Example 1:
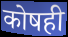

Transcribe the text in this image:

कोषही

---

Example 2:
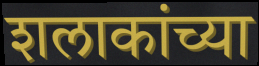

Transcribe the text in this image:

शलाकांच्या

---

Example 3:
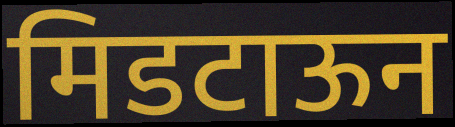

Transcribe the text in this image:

मिडटाऊन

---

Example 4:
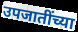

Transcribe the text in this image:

उपजातींच्या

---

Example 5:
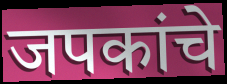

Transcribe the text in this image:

जपकांचे